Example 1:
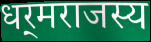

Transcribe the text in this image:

धर्मराजस्य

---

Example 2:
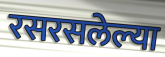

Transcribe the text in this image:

रसरसलेल्या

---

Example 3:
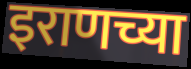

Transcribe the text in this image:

इराणच्या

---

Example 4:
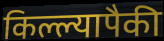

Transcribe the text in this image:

किल्ल्यापैकी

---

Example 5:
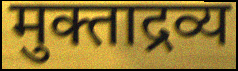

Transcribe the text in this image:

मुक्ताद्रव्य